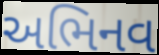
અભિનવ